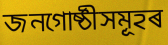
জনগোষ্ঠীসমূহৰ